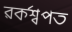
ৱৰ্কশ্বপত